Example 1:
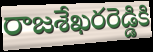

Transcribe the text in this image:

రాజశేఖరరెడ్డికి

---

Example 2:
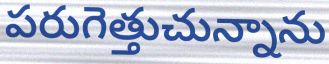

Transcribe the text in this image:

పరుగెత్తుచున్నాను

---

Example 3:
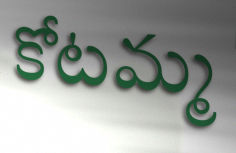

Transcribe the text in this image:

కోటమ్మ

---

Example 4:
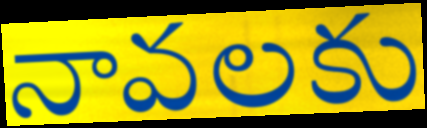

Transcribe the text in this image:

నావలకు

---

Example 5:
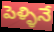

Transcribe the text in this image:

పెళ్ళినే